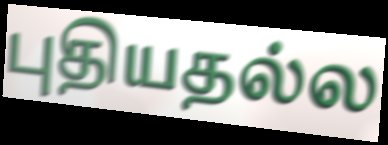
புதியதல்ல